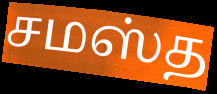
சமஸ்த